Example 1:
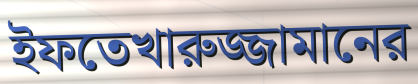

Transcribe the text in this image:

ইফতেখারুজ্জামানের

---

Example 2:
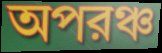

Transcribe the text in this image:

অপরঞ্চ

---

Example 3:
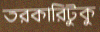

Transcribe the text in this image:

তরকারিটুকু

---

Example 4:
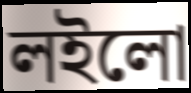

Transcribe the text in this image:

লইলো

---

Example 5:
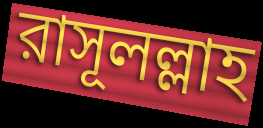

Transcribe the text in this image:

রাসূলল্লাহ